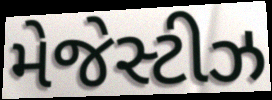
મેજેસ્ટીઝ